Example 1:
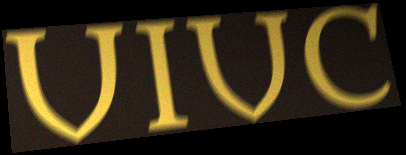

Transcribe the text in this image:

UIUC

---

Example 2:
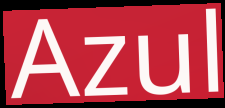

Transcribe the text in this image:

Azul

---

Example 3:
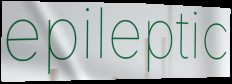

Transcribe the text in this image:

epileptic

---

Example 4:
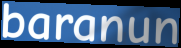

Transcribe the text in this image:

baranun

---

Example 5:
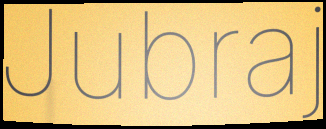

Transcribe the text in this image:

Jubraj